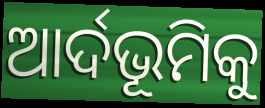
ଆର୍ଦଭୂମିକୁ